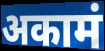
अकामं